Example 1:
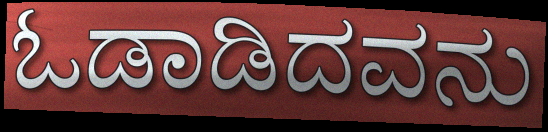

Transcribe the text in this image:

ಓಡಾಡಿದವನು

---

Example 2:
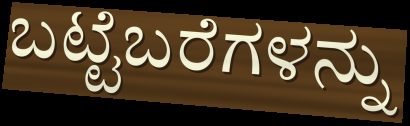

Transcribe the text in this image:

ಬಟ್ಟೆಬರೆಗಳನ್ನು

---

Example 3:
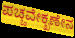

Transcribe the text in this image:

ಪಚ್ಚವೇಕ್ಖಣೇನ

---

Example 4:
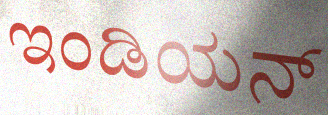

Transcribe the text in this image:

ಇಂಡಿಯನ್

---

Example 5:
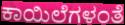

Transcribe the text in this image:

ಕಾಯಿಲೆಗಳಂತೆ